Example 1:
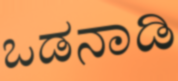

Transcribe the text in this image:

ಒಡನಾಡಿ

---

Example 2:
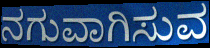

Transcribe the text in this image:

ನಗುವಾಗಿಸುವ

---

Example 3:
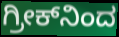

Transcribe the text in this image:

ಗ್ರೀಕ್‌ನಿಂದ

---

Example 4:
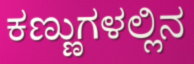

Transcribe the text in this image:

ಕಣ್ಣುಗಳಲ್ಲಿನ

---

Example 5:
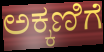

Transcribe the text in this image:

ಅಕ್ಕಣಿಗೆ